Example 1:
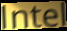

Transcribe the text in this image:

Intel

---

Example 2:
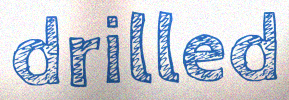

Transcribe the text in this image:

drilled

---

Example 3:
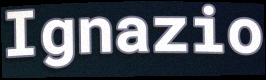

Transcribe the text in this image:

Ignazio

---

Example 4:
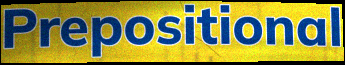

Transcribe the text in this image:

Prepositional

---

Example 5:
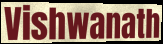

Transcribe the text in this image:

Vishwanath